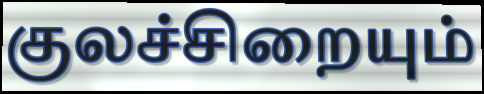
குலச்சிறையும்